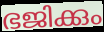
ഭജിക്കും